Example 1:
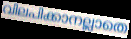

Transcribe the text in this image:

വിലപിക്കാനല്ലാതെ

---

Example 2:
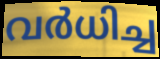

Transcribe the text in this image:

വർധിച്ച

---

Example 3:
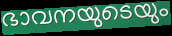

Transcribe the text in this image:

ഭാവനയുടെയും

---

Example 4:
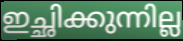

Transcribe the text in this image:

ഇച്ഛിക്കുന്നില്ല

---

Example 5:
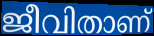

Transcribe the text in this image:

ജീവിതാണ്